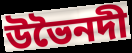
উভৈনদী